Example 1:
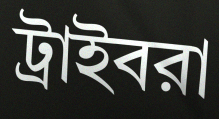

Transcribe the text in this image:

ট্রাইবরা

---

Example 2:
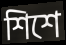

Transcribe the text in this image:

শিশে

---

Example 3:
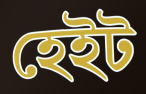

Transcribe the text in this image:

হেইট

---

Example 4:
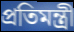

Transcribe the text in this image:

প্রতিমন্ত্রী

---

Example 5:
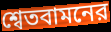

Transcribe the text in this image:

শ্বেতবামনের